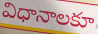
విధానాలకూ